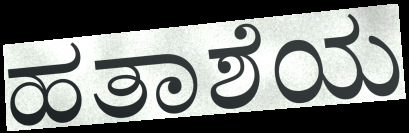
ಹತಾಶೆಯ